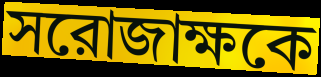
সরোজাক্ষকে